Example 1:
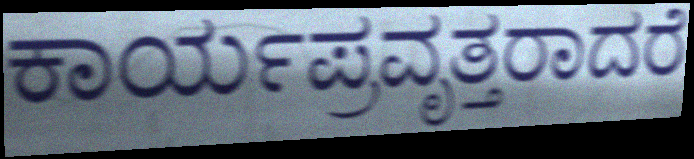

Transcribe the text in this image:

ಕಾರ್ಯಪ್ರವೃತ್ತರಾದರೆ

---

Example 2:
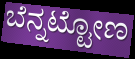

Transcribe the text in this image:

ಬೆನ್ನಟ್ಟೋಣ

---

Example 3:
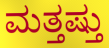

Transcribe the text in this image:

ಮತ್ತಷ್ತು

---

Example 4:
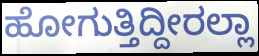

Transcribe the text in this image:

ಹೋಗುತ್ತಿದ್ದೀರಲ್ಲಾ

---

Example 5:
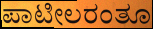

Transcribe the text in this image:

ಪಾಟೀಲರಂತೂ